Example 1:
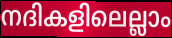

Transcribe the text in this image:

നദികളിലെല്ലാം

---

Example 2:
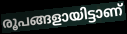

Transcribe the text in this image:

രൂപങ്ങളായിട്ടാണ്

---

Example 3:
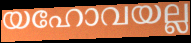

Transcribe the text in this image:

യഹോവയല്ല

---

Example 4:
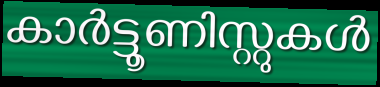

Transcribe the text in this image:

കാർട്ടൂണിസ്റ്റുകൾ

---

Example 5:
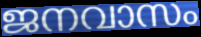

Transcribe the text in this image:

ജനവാസം